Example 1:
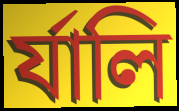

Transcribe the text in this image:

র্যালি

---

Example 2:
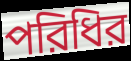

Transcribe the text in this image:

পরিধির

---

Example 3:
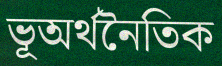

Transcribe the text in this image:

ভূঅর্থনৈতিক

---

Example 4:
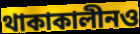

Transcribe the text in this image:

থাকাকালীনও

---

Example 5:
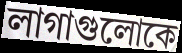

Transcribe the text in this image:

লাগাগুলোকে